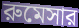
রুমেসার